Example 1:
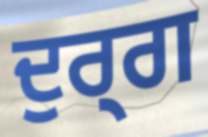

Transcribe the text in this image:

ਦੁਰ੍ਗ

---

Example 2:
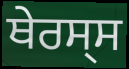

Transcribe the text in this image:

ਥੇਰਸ੍ਸ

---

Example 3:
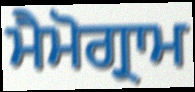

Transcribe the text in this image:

ਮੈਮੋਗ੍ਰਾਮ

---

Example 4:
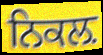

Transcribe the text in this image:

ਨਿਕਲ਼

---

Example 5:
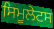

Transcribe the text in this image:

ਸਿਮੂਲੇਟਸ